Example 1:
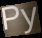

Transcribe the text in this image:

Py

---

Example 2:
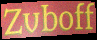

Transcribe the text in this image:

Zuboff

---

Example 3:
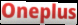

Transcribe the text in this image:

Oneplus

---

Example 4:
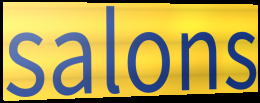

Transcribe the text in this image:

salons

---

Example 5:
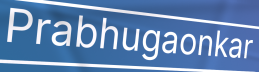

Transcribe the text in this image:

Prabhugaonkar